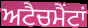
ਅਟੈਚਮੈਂਟਾਂ